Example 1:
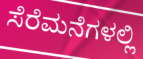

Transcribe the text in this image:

ಸೆರೆಮನೆಗಳಲ್ಲಿ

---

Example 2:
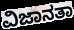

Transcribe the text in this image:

ವಿಜಾನತಾ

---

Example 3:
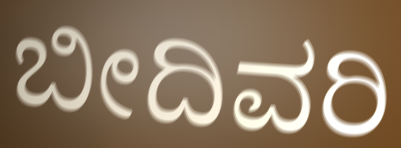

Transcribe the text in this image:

ಬೀದಿವರಿ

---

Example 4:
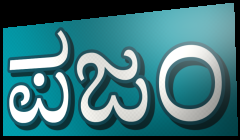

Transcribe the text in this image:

ಪಜಂ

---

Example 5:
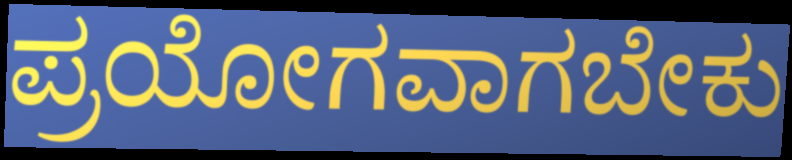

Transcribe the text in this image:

ಪ್ರಯೋಗವಾಗಬೇಕು